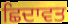
ਛਿਦਾਵਤ